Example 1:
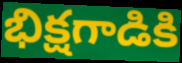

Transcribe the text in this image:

భిక్షగాడికి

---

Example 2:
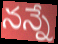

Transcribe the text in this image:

నన్నే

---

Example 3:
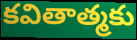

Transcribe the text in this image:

కవితాత్మకు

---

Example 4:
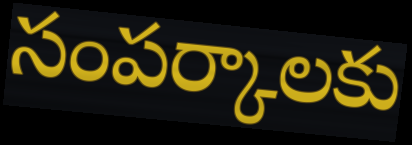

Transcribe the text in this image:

సంపర్కాలకు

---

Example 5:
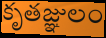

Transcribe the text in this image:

కృతజ్ఞులం